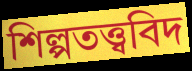
শিল্পতত্ত্ববিদ